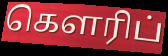
கௌரிப்